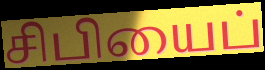
சிபியைப்